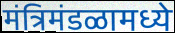
मंत्रिमंडळामध्ये